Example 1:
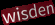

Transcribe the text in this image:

wisden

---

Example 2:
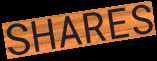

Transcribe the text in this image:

SHARES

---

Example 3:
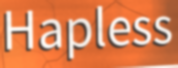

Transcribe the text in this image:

Hapless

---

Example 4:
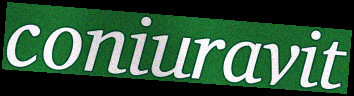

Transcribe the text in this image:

coniuravit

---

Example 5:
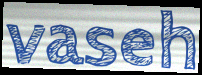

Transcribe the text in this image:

vaseh